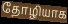
தோழியாக